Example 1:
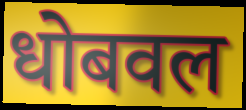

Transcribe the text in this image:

धोबवल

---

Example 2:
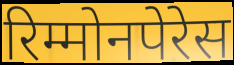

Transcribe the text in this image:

रिम्मोनपेरेस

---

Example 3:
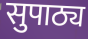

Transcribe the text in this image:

सुपाठ्य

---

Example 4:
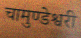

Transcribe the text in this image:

चामुण्डेश्वरी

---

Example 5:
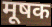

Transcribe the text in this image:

मूषक